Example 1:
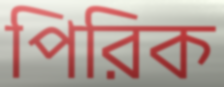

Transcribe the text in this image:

পিরিক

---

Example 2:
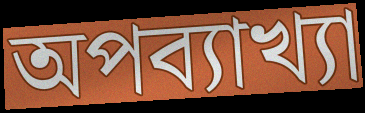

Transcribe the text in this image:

অপব্যাখ্যা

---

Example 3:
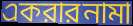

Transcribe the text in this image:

একরারনামা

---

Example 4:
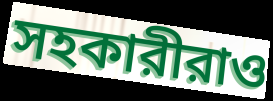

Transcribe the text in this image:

সহকারীরাও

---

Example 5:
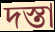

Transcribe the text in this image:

দস্তা